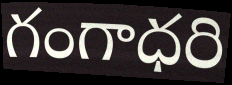
గంగాధరి